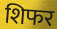
शिफर